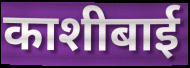
काशीबाई